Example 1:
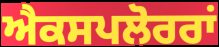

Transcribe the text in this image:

ਐਕਸਪਲੋਰਰਾਂ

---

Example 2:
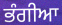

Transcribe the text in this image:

ਭੰਗੀਆ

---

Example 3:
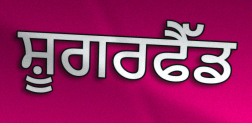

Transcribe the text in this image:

ਸ਼ੂਗਰਫੈੱਡ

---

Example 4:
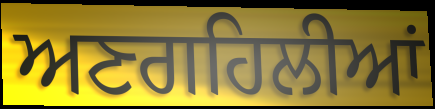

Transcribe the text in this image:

ਅਣਗਹਿਲੀਆਂ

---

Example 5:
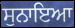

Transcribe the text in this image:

ਸੁਨਾਇਆ